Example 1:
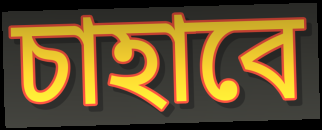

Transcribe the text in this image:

চাহাবে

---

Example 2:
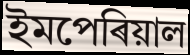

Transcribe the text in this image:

ইমপেৰিয়াল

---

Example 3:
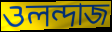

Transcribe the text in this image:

ওলন্দাজ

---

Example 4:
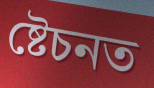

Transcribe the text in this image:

ষ্টেচনত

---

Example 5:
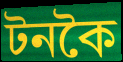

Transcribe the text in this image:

টনকৈ